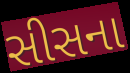
સીસના